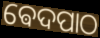
ଵେଦପାଠ